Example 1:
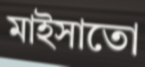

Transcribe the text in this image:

মাইসাতো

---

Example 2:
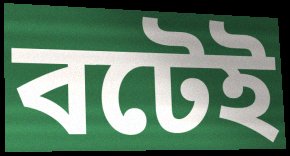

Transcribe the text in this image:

বটেই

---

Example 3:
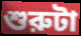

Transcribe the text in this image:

শুরুটা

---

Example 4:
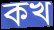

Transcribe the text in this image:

কখ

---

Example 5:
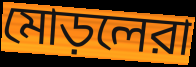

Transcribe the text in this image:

মোড়লেরা